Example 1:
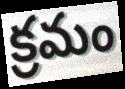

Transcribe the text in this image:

క్రమం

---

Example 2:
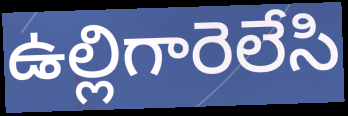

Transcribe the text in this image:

ఉల్లిగారెలేసి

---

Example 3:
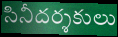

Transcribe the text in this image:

సినీదర్శకులు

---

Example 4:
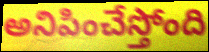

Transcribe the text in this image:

అనిపించేస్తోంది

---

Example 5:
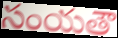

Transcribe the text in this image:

సంయతౌ